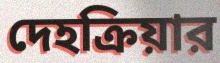
দেহক্রিয়ার